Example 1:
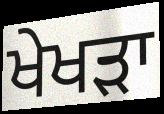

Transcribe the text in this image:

ਖੇਖੜਾ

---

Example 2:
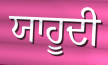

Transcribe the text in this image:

ਯਾਹੂਦੀ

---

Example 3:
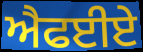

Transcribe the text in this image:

ਐਫਈਏ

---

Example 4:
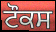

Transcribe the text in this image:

ਟੌਕਸ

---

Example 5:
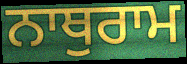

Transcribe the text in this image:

ਨਾਥੁਰਾਮ